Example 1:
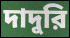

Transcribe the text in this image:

দাদুরি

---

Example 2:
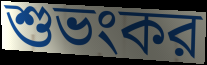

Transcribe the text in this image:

শুভংকর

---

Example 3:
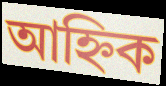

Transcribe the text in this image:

আহ্নিক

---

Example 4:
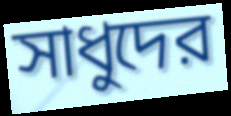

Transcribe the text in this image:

সাধুদের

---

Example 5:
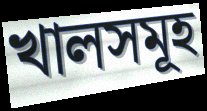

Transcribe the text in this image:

খালসমূহ